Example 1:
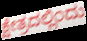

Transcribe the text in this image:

ಕ್ಷೇತ್ರದಲ್ಲಿಂದು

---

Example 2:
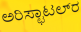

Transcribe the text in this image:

ಅರಿಸ್ಟಾಟಲ್‍ರ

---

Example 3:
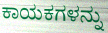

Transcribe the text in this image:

ಕಾಯಕಗಳನ್ನು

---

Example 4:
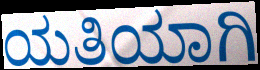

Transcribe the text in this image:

ಯತಿಯಾಗಿ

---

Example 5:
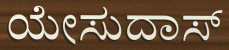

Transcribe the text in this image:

ಯೇಸುದಾಸ್